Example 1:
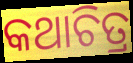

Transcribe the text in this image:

କଥାଚିତ୍ର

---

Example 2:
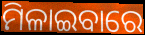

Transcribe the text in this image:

ମିଳାଇବାରେ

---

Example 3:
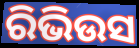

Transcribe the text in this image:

ରିଭିଉସ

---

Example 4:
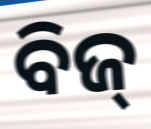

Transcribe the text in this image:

ବିଜ୍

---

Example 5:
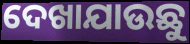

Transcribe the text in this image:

ଦେଖାଯାଉଛୁ